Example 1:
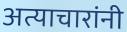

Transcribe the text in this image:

अत्याचारांनी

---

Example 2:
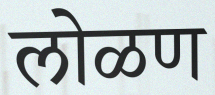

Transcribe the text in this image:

लोळण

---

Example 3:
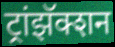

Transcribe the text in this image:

ट्रांझॅक्शन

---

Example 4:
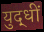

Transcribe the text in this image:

युद्धीं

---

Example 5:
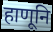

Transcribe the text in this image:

हाणूनि